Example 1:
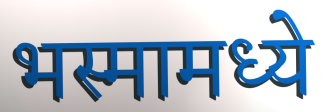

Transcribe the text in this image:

भस्मामध्ये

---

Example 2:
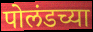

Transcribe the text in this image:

पोलंडच्या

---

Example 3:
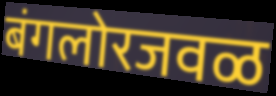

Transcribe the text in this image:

बंगलोरजवळ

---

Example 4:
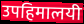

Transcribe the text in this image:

उपहिमालयी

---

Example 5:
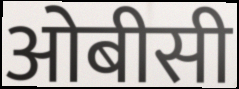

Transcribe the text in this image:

ओबीसी